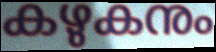
കഴുകനും